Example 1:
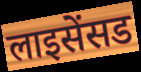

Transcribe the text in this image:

लाइसेंसड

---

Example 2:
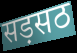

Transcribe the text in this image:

सड़सठ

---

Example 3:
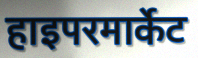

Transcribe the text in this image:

हाइपरमार्केट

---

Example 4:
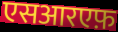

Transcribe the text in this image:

एसआरएफ़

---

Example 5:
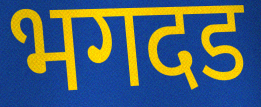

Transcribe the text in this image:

भगदड